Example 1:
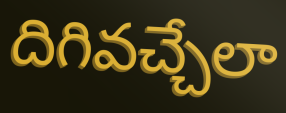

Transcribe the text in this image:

దిగివచ్చేలా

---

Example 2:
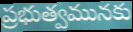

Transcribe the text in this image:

ప్రభుత్వమునకు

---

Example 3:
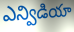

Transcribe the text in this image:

ఎన్విడియా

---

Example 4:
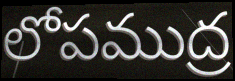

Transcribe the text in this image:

లోపముద్ర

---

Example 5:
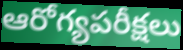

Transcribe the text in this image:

ఆరోగ్యపరీక్షలు